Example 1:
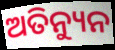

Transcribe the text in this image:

ଅତିନ୍ୟୁନ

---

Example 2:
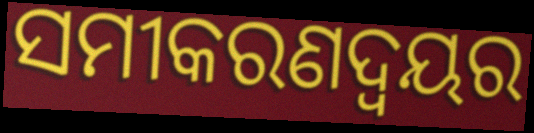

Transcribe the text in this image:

ସମୀକରଣଦ୍ଵୟର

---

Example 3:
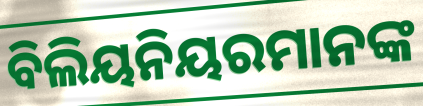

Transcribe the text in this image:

ବିଲିୟନିୟରମାନଙ୍କ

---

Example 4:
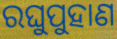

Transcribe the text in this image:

ରଘୁପୁହାଣ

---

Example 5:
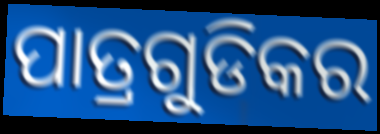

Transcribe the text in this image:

ପାତ୍ରଗୁଡିକର